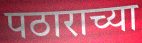
पठाराच्या